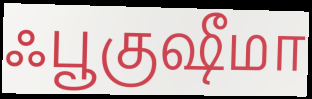
ஃபூகுஷீமா